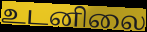
உடனிலை